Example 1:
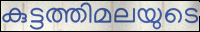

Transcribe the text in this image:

കുട്ടത്തിമലയുടെ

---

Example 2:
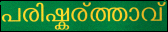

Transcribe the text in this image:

പരിഷ്കര്ത്താവ്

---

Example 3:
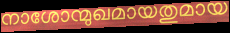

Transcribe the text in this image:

നാശോന്മുഖമായതുമായ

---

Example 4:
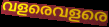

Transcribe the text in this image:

വളരെവളരെ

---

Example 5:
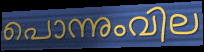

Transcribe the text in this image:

പൊന്നുംവില